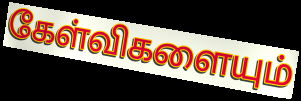
கேள்விகளையும்